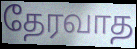
தேரவாத